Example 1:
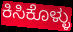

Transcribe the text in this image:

ಕಿಸಿಕೊಳ್ಳು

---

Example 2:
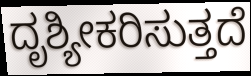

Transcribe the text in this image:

ದೃಶ್ಯೀಕರಿಸುತ್ತದೆ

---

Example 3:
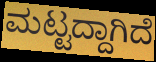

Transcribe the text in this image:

ಮಟ್ಟದ್ದಾಗಿದೆ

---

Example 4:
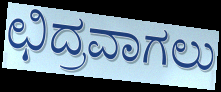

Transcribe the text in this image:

ಛಿದ್ರವಾಗಲು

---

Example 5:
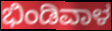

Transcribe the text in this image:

ಭಿಂಡಿವಾಳ